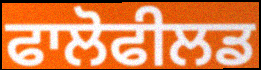
ਫਾਲੋਫੀਲਡ